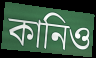
কানিও